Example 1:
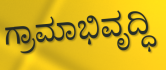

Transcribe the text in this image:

ಗ್ರಾಮಾಭಿವೃದ್ಧಿ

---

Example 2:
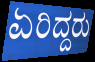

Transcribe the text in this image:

ಏರಿದ್ದರು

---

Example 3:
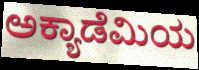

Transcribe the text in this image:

ಅಕ್ಯಾಡೆಮಿಯ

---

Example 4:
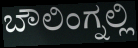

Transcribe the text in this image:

ಬೌಲಿಂಗ್ನಲ್ಲಿ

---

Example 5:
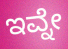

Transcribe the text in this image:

ಇವ್ನೇ